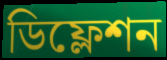
ডিফ্লেশন